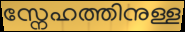
സ്നേഹത്തിനുള്ള